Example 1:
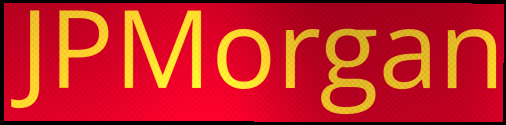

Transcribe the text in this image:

JPMorgan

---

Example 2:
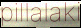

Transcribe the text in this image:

pillalaki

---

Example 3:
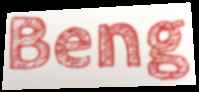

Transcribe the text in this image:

Beng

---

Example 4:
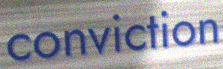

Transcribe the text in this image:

conviction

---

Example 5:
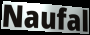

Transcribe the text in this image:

Naufal